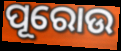
ପୂରୋଉ